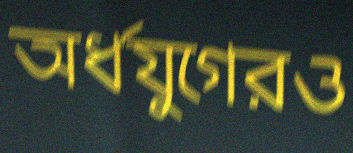
অর্ধযুগেরও